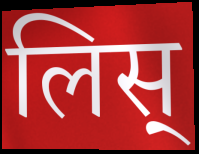
लिस्